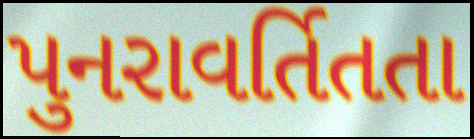
પુનરાવર્તિતતા